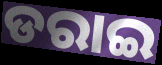
ଡରାଇ